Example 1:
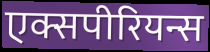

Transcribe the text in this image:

एक्सपीरियन्स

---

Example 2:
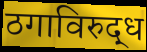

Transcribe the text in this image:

ठगाविरुद्ध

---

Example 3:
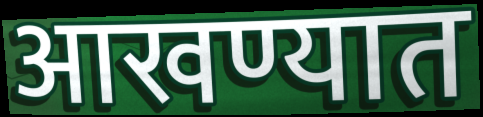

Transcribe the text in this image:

आखण्यात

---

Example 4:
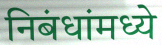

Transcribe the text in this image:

निबंधांमध्ये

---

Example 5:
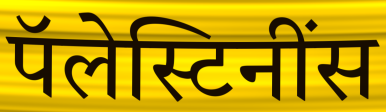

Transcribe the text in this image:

पॅलेस्टिनींस